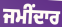
ਜਮੀਂਦਾਰ